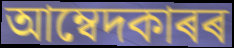
আম্বেদকাৰৰ